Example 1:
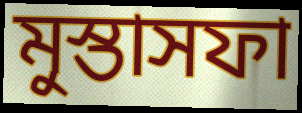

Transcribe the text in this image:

মুস্তাসফা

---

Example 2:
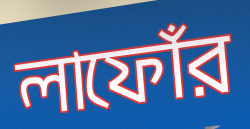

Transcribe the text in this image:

লাফোঁর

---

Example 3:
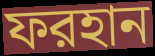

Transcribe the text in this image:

ফরহান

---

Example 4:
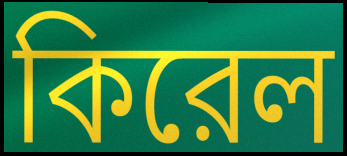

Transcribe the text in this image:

কিরেল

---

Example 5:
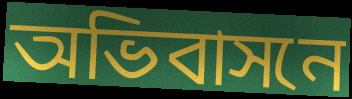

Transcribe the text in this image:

অভিবাসনে